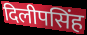
दिलीपसिंह